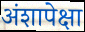
अंशापेक्षा